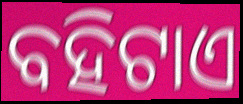
ବହିଟାଏ